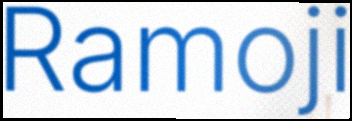
Ramoji